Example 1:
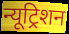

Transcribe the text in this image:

न्यूट्रिशन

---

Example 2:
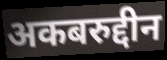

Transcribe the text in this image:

अकबरुद्दीन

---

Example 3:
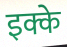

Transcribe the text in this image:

इक्के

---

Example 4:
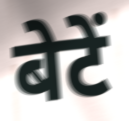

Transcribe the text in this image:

बेटें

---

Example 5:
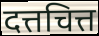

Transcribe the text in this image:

दत्तचित्त